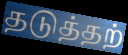
தடுத்தற்